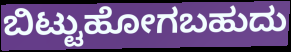
ಬಿಟ್ಟುಹೋಗಬಹುದು